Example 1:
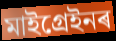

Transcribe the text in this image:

মাইগ্ৰেইনৰ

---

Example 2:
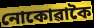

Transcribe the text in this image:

নোকোৱাকৈ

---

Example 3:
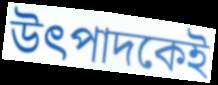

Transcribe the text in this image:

উৎপাদকেই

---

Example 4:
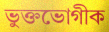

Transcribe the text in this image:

ভুক্তভোগীক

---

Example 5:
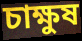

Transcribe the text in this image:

চাক্ষুষ